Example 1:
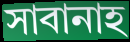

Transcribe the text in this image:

সাবানাহ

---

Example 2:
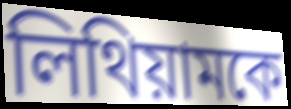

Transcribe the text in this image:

লিথিয়ামকে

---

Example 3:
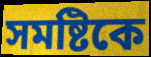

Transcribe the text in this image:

সমষ্টিকে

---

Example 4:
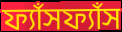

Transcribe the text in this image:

ফ্যাঁসফ্যাঁস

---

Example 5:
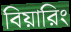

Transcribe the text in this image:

বিয়ারিং